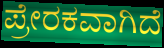
ಪ್ರೇರಕವಾಗಿದೆ